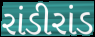
રાંડીરાંડ